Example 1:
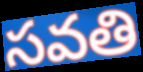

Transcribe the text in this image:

సవతి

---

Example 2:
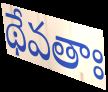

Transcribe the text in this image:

థేవతాః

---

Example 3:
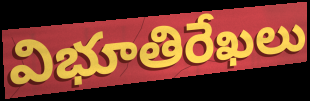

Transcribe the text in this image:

విభూతిరేఖలు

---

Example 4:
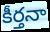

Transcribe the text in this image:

కీర్తనా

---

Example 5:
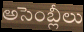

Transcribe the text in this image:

అసెంబ్లీలు